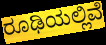
ರೂಢಿಯಲ್ಲಿವೆ